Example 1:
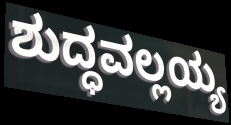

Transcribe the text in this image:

ಶುದ್ಧವಲ್ಲಯ್ಯ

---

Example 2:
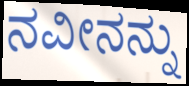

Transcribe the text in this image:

ನವೀನನ್ನು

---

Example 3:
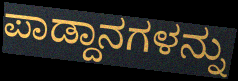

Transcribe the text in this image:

ಪಾಡ್ದಾನಗಳನ್ನು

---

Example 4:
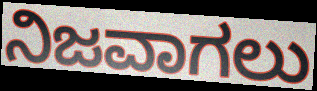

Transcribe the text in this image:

ನಿಜವಾಗಲು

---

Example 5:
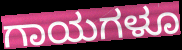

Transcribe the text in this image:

ಗಾಯಗಳೂ